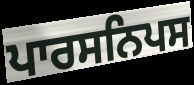
ਪਾਰਸਨਿਪਸ